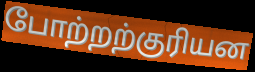
போற்றற்குரியன